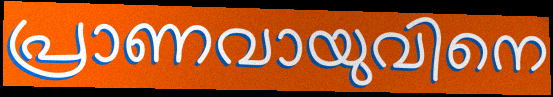
പ്രാണവായുവിനെ